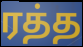
ரத்த